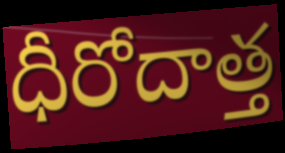
ధీరోదాత్త